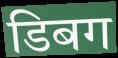
डिबग